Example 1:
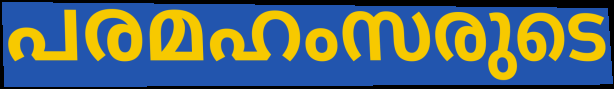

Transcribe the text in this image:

പരമഹംസരുടെ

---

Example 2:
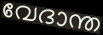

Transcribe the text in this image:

വേദാന്ത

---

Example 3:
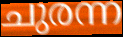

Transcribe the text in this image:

ചുരന്ന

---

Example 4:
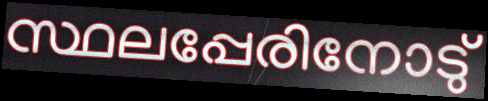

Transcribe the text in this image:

സ്ഥലപ്പേരിനോടു്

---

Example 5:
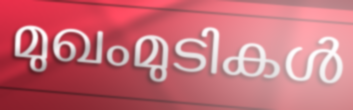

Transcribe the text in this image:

മുഖംമുടികൾ